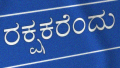
ರಕ್ಷಕರೆಂದು